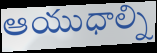
ఆయుధాల్ని